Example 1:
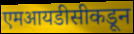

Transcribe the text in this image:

एमआयडीसीकडून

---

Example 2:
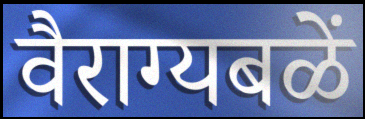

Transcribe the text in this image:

वैराग्यबळें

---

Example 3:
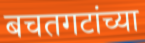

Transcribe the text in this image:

बचतगटांच्या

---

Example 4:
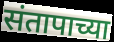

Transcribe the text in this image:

संतापाच्या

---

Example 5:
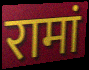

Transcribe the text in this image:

रामां